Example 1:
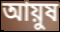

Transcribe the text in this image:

আয়ুষ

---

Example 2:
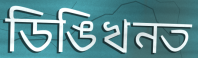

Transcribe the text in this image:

ডিঙিখনত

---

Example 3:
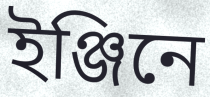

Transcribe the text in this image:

ইঞ্জিনে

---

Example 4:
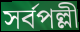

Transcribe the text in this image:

সৰ্বপল্লী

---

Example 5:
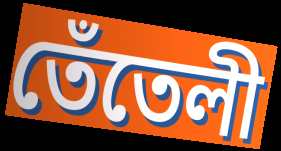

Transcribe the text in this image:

তেঁতেলী